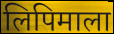
लिपिमाला